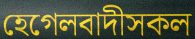
হেগেলবাদীসকল